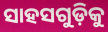
ସାହସଗୁଡ଼ିକୁ